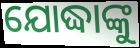
ଯୋଦ୍ଧାଙ୍କୁ